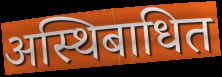
अस्थिबाधित